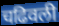
चढिवली